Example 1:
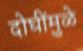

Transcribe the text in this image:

दोघींमुळे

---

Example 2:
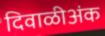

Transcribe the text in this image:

दिवाळीअंक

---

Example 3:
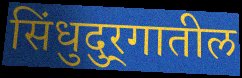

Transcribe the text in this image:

सिंधुदुर्गातील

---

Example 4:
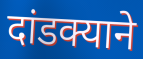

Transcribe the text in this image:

दांडक्याने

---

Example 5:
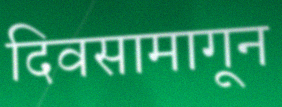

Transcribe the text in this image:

दिवसामागून